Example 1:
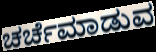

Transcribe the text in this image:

ಚರ್ಚೆಮಾಡುವ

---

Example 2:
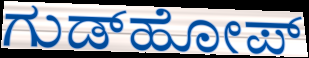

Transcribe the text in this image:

ಗುಡ್‌ಹೋಪ್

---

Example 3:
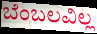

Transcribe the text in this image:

ಬೆಂಬಲವಿಲ್ಲ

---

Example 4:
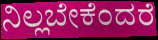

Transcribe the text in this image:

ನಿಲ್ಲಬೇಕೆಂದರೆ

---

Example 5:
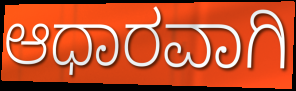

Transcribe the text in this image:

ಆಧಾರವಾಗಿ